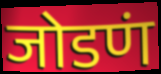
जोडणं